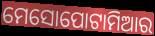
ମେସୋପୋଟାମିଆର